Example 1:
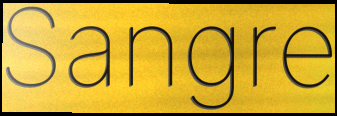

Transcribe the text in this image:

Sangre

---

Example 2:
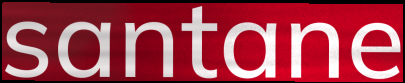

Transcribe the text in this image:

santane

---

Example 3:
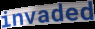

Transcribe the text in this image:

invaded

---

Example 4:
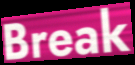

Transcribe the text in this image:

Break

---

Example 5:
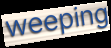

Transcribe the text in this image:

weeping